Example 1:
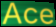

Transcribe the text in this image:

Ace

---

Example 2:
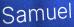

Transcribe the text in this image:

Samuel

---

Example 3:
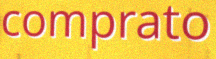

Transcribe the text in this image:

comprato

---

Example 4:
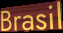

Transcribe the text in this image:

Brasil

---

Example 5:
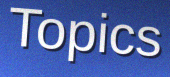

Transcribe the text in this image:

Topics